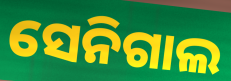
ସେନିଗାଲ